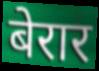
बेरार